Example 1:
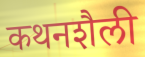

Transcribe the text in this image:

कथनशैली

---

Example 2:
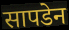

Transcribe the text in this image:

सापडेन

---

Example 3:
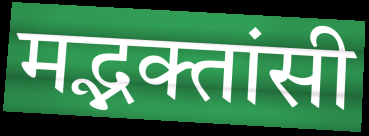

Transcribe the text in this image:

मद्भक्तांसी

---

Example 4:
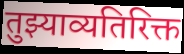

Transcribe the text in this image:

तुझ्याव्यतिरिक्त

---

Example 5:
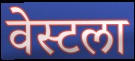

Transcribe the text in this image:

वेस्टला